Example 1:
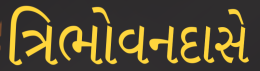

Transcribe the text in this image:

ત્રિભોવનદાસે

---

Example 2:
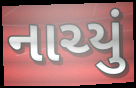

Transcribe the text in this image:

નાચ્યું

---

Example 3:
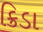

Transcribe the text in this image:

ક્રિડા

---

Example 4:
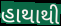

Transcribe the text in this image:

હાથાથી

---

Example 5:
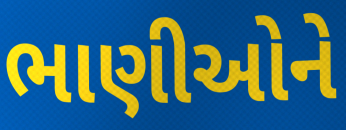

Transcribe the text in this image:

ભાણીઓને